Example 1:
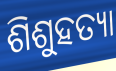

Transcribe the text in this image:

ଶିଶୁହତ୍ୟା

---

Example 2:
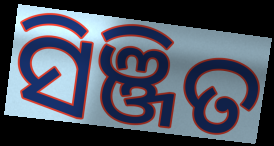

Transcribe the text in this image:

ସିଞ୍ଜିତ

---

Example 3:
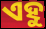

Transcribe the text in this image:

ଏହୁ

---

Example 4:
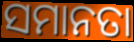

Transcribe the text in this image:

ସମାନତା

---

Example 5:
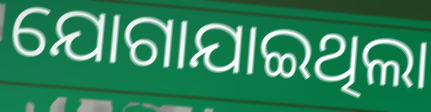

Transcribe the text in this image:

ଯୋଗାଯାଇଥିଲା